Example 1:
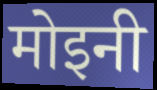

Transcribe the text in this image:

मोइनी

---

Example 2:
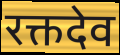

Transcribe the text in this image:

रक्तदेव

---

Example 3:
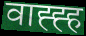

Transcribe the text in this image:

वाह्ह्ह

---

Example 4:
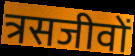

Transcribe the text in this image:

त्रसजीवों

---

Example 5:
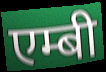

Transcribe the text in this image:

एम्बी